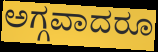
ಅಗ್ಗವಾದರೂ